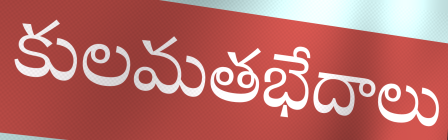
కులమతభేదాలు